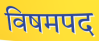
विषमपद